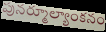
పునర్మూల్యాంకనం